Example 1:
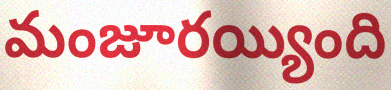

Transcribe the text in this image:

మంజూరయ్యింది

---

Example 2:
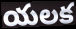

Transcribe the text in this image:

యలక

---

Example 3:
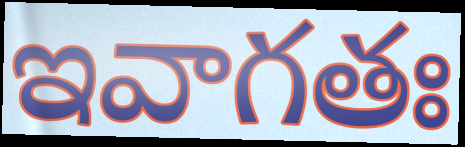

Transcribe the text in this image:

ఇవాగతః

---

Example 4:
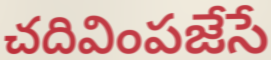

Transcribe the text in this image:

చదివింపజేసే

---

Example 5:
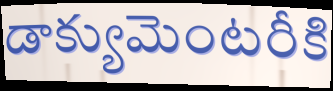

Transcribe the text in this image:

డాక్యుమెంటరీకి